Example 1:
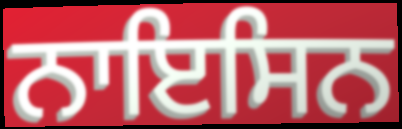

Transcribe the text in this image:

ਨਾਇਸਿਨ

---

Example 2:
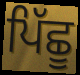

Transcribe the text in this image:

ਪਿੱਛੂ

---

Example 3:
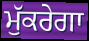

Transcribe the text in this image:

ਮੁੱਕਰੇਗਾ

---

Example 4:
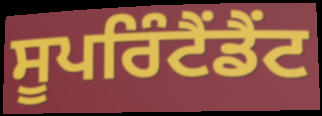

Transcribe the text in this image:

ਸੂਪਰਿੰਟੈਂਡੈਂਟ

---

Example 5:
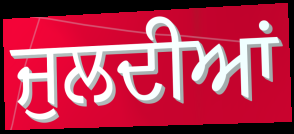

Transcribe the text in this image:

ਜੁਲਦੀਆਂ